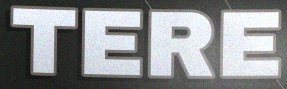
TERE